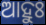
ଆହୁଃ